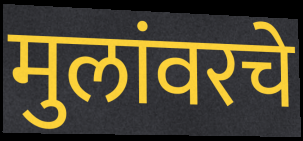
मुलांवरचे